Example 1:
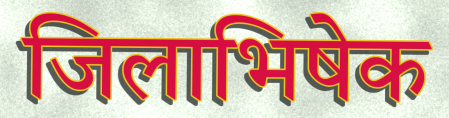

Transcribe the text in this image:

जिलाभिषेक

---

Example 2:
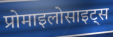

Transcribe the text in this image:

प्रोमाइलोसाइट्स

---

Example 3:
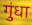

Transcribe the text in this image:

गुंधा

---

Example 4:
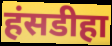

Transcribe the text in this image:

हंसडीहा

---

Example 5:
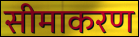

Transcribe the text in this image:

सीमाकरण